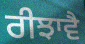
ਰੀਝਾਵੈ